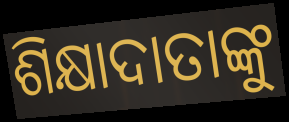
ଶିକ୍ଷାଦାତାଙ୍କୁ